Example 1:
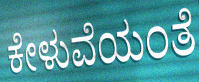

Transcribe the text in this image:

ಕೇಳುವೆಯಂತೆ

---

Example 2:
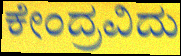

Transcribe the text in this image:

ಕೇಂದ್ರವಿದು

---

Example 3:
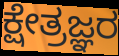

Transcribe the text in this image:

ಕ್ಷೇತ್ರಜ್ಞರ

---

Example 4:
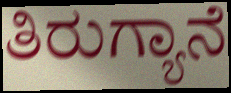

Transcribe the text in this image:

ತಿರುಗ್ಯಾನೆ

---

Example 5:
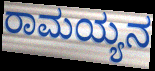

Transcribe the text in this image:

ರಾಮಯ್ಯನ